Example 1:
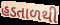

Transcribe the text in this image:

હડતાળથી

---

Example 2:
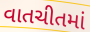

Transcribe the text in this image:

વાતચીતમાં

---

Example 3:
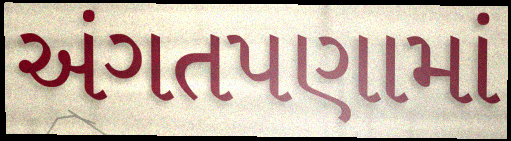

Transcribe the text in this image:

અંગતપણામાં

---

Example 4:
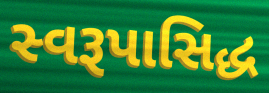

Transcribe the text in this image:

સ્વરૂપાસિદ્ધ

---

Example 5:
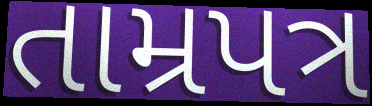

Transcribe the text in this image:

તામ્રપત્ર